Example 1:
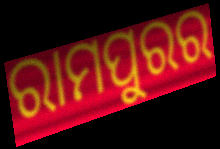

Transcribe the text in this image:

ରାମପୁରର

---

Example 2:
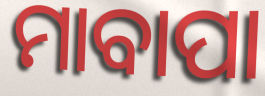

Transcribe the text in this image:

ମାବାପା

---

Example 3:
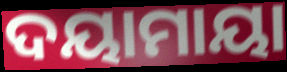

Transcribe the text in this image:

ଦୟାମାୟା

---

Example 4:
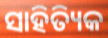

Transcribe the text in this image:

ସାହିତ୍ୟିକ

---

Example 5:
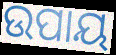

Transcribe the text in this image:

ଉପାୟ